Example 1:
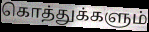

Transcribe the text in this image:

கொத்துக்களும்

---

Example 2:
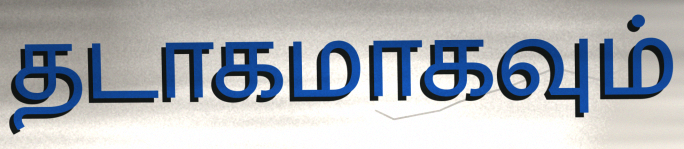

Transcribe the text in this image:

தடாகமாகவும்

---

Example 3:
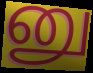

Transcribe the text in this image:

னு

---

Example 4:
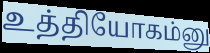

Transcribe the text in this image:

உத்தியோகம்னு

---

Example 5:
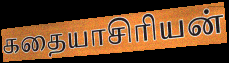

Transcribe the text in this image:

கதையாசிரியன்